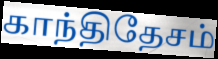
காந்திதேசம்